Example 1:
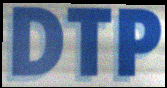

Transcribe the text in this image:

DTP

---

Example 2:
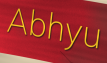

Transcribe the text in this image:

Abhyu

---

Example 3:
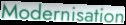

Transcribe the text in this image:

Modernisation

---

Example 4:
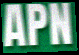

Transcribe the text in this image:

APN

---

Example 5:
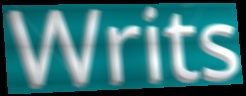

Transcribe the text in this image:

Writs